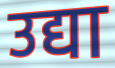
उद्या